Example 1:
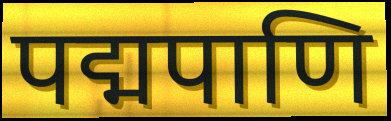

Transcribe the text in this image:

पद्मपाणि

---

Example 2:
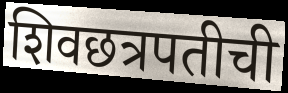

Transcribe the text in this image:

शिवछत्रपतीची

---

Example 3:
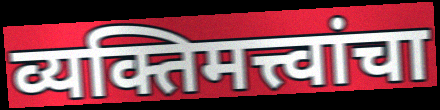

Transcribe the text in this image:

व्यक्तिमत्त्वांचा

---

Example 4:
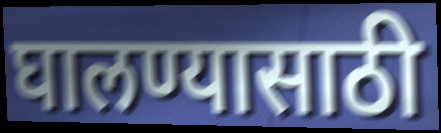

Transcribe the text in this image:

घालण्यासाठी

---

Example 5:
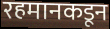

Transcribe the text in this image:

रहमानकडून